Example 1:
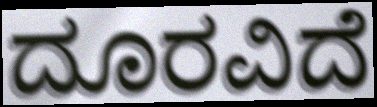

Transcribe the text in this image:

ದೂರವಿದೆ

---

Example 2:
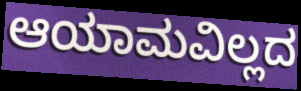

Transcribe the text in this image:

ಆಯಾಮವಿಲ್ಲದ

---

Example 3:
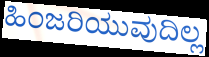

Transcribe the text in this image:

ಹಿಂಜರಿಯುವುದಿಲ್ಲ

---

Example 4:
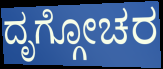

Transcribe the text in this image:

ದೃಗ್ಗೋಚರ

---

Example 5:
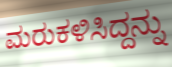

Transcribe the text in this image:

ಮರುಕಳಿಸಿದ್ದನ್ನು